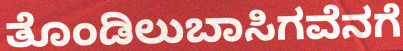
ತೊಂಡಿಲುಬಾಸಿಗವೆನಗೆ